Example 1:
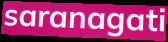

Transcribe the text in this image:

saranagati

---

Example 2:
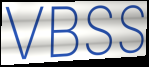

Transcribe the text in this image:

VBSS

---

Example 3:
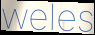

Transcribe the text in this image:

weles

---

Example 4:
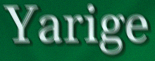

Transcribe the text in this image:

Yarige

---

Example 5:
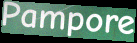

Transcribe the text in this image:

Pampore